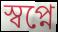
স্বপ্নে